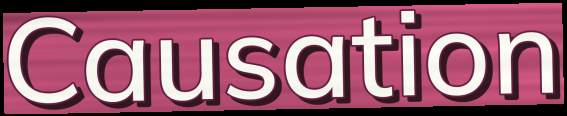
Causation